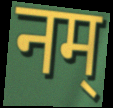
नम्